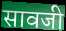
सावजी